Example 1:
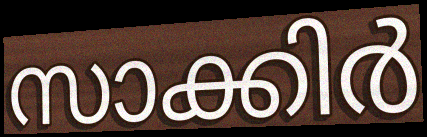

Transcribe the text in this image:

സാക്കിർ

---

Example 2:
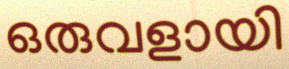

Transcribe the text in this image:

ഒരുവളായി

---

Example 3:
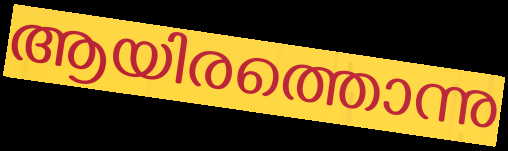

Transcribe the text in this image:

ആയിരത്തൊന്നു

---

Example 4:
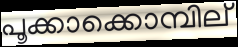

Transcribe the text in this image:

പൂക്കാക്കൊമ്പില്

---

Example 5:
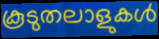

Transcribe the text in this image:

കൂടുതലാളുകൾ